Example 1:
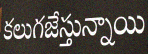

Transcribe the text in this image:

కలుగజేస్తున్నాయి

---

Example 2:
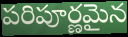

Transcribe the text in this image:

పరిపూర్ణమైన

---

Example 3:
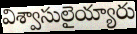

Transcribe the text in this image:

విశ్వాసులైయ్యారు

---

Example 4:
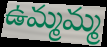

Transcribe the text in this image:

ఉమ్మమ్మ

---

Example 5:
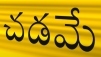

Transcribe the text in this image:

చడమే